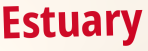
Estuary